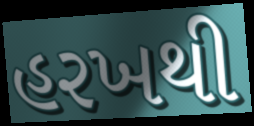
હરખથી